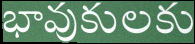
భావుకులకు